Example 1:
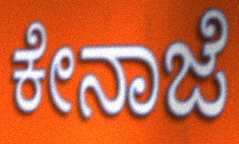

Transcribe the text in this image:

ಕೇನಾಜೆ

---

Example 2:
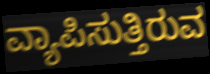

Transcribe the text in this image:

ವ್ಯಾಪಿಸುತ್ತಿರುವ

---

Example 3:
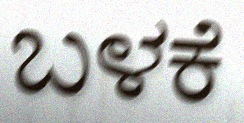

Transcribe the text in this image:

ಬಳಕೆ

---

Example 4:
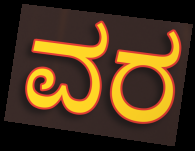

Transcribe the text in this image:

ವರ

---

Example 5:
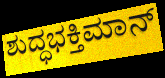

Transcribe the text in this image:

ಶುದ್ಧಭಕ್ತಿಮಾನ್